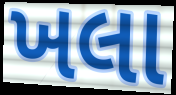
ખલા